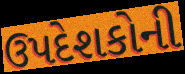
ઉપદેશકોની